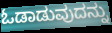
ಓಡಾಡುವುದನ್ನು